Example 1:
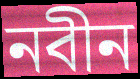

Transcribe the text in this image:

নবীন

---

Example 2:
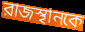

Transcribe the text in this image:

রাজস্থানকে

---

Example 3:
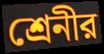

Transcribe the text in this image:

শ্রেনীর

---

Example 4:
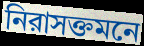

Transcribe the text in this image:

নিরাসক্তমনে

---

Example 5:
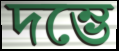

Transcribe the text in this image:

দম্ভে